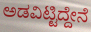
ಅಡವಿಟ್ಟಿದ್ದೇನೆ